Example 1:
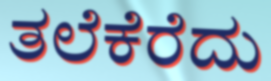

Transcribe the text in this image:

ತಲೆಕೆರೆದು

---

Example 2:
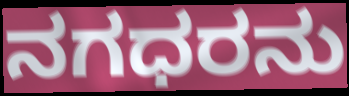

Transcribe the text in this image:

ನಗಧರನು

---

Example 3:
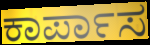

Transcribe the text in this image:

ಕಾರ್ಪಾಸ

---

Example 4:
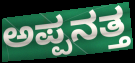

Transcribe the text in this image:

ಅಪ್ಪನತ್ತ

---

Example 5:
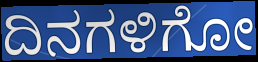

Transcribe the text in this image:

ದಿನಗಳಿಗೋ